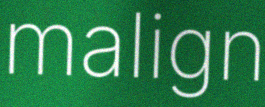
malign